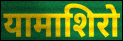
यामाशिरो